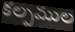
కల్పముల